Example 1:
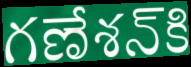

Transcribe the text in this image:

గణేశన్‍కి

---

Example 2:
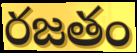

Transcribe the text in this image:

రజతం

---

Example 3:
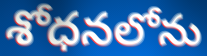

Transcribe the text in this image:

శోధనలోను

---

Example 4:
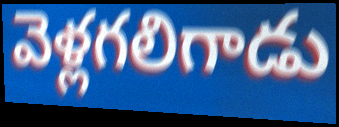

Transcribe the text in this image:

వెళ్లగలిగాడు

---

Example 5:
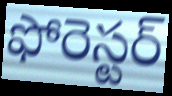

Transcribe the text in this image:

ఫోరెస్టర్